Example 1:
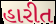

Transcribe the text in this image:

હારીત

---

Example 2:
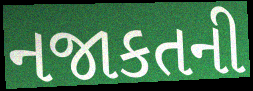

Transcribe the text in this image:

નજાકતની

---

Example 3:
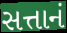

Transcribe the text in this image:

સત્તાનં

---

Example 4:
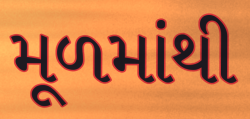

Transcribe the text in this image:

મૂળમાંથી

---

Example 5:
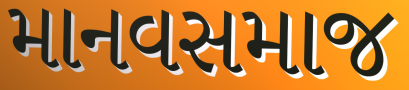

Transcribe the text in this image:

માનવસમાજ